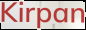
Kirpan